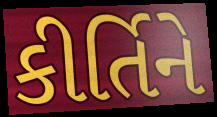
કીર્તિને